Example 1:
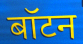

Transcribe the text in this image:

बॉटन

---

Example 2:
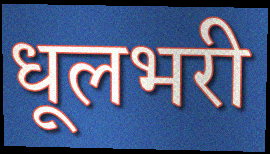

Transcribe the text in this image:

धूलभरी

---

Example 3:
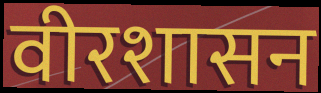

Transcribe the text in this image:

वीरशासन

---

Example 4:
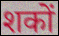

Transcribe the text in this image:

शकों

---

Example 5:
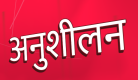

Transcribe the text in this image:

अनुशीलन